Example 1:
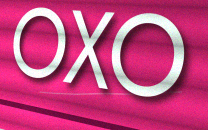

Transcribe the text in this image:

OXO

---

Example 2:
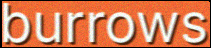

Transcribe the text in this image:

burrows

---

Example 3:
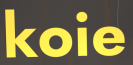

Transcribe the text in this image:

koie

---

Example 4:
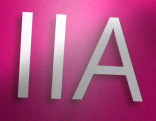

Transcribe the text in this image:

IIA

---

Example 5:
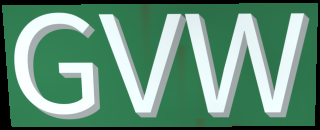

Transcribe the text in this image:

GVW